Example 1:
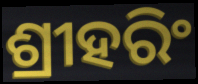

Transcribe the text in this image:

ଶ୍ରୀହରିଂ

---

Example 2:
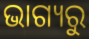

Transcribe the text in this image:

ଭାଗ୍ୟରୁ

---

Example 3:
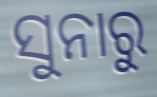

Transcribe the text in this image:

ସୁନାରୁ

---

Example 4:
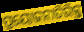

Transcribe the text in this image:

ପ୍ରୟୋଜନାତିରିକ୍ତ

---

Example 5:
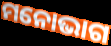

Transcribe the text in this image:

ମନୋଭାଗ